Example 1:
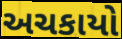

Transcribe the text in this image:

અચકાયો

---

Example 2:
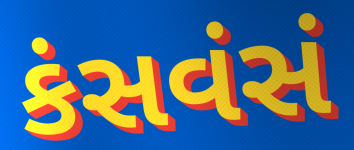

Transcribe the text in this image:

કંસવંસં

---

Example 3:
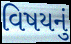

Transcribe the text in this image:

વિષયનું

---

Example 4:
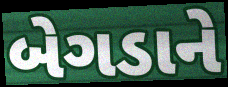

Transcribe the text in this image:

બેગડાને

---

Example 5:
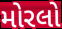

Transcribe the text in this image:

મોરલો